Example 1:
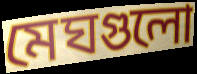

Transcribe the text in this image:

মেঘগুলো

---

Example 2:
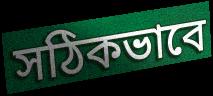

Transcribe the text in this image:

সঠিকভাবে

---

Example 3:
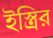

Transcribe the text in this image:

ইস্ত্রির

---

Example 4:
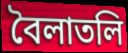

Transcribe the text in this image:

বৈলাতলি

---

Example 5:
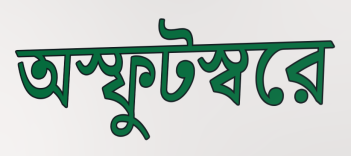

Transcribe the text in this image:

অস্ফুটস্বরে